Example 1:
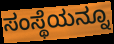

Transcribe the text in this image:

ಸಂಸ್ಥೆಯನ್ನೂ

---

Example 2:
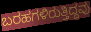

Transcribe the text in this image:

ಬರಹಗಳಿರುತ್ತಿದ್ದವು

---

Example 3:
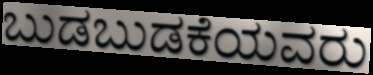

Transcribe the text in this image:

ಬುಡಬುಡಕೆಯವರು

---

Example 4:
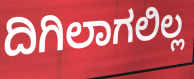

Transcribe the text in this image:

ದಿಗಿಲಾಗಲಿಲ್ಲ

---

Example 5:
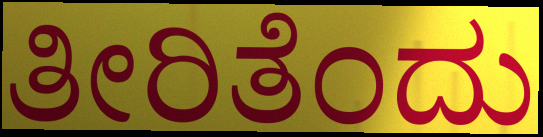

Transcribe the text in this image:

ತೀರಿತೆಂದು